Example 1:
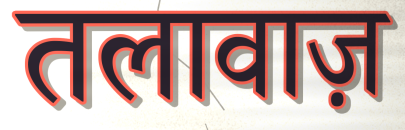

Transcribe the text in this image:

तलावाज़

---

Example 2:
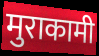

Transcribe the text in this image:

मुराकामी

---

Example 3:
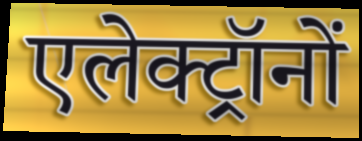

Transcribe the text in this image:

एलेक्ट्रॉनों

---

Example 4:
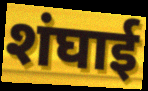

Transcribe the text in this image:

शंघाई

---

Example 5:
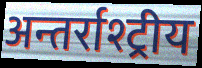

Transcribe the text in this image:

अन्तर्राश्ट्रीय